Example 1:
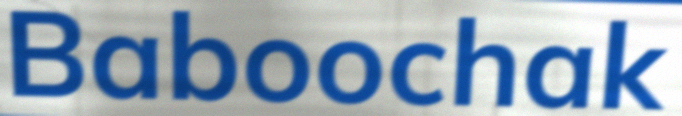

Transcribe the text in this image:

Baboochak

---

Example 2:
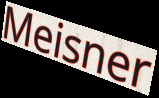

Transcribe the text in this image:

Meisner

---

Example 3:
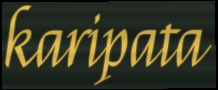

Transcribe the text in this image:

karipata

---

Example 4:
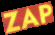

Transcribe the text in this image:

ZAP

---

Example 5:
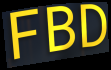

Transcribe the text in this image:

FBD